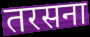
तरसना